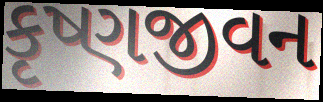
કૃષ્ણજીવન